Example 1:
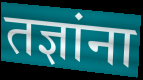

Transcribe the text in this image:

तज्ञांना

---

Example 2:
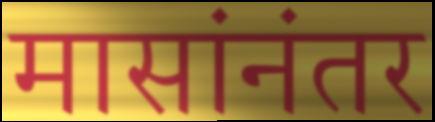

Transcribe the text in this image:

मासांनंतर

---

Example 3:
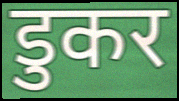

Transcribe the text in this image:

डुकर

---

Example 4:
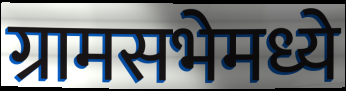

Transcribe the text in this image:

ग्रामसभेमध्ये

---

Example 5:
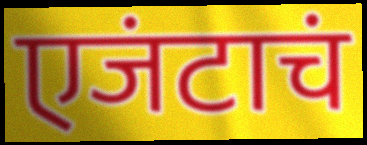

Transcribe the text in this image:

एजंटाचं